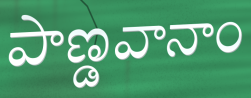
పాణ్డవానాం